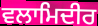
ਵਲਾਮਿਦੀਰ